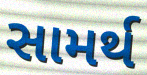
સામર્થ